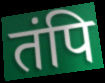
तंपि